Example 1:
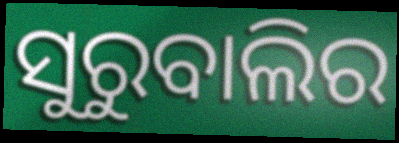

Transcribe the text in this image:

ସୁରୁବାଲିର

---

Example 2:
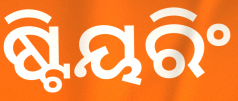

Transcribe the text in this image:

ଷ୍ଟିୟରିଂ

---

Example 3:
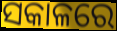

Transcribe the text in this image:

ସକାଳରେ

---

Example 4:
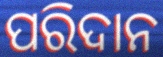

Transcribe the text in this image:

ପରିଦାନ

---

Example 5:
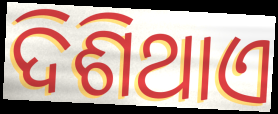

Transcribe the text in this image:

ଦିଶିଥାଏ